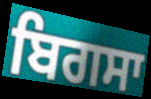
ਬਿਗਸਾ